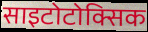
साइटोटोक्सिक